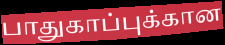
பாதுகாப்புக்கான